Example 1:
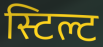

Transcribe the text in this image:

स्टिल्ट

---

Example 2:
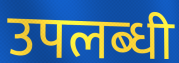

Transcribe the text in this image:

उपलब्धी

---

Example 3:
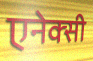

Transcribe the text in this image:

एनेक्‍सी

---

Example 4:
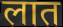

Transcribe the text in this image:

लात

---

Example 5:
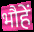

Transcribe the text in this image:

भौहें